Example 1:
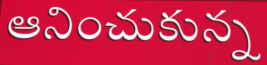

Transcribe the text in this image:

ఆనించుకున్న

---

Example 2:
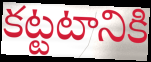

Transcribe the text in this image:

కట్టటానికి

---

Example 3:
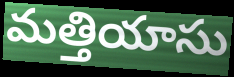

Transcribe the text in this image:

మత్తియాసు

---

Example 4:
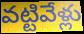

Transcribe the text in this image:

వట్టివేళ్లు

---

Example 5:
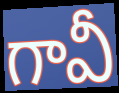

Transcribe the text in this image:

గావీ